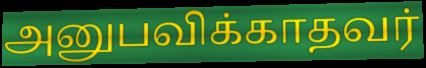
அனுபவிக்காதவர்